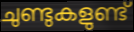
ചുണ്ടുകളുണ്ട്